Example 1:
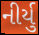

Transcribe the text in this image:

નીર્યુ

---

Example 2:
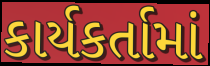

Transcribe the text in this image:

કાર્યકર્તામાં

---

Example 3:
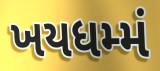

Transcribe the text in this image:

ખયધમ્મં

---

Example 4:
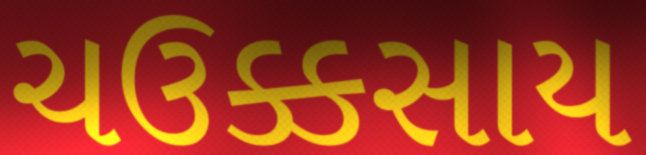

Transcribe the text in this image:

ચઉક્કસાય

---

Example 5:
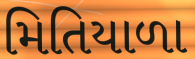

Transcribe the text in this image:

મિતિયાળા